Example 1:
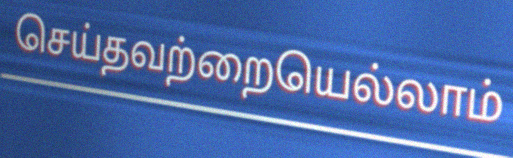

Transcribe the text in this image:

செய்தவற்றையெல்லாம்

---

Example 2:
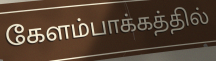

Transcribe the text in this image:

கேளம்பாக்கத்தில்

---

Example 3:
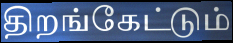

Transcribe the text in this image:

திறங்கேட்டும்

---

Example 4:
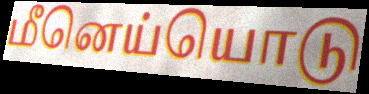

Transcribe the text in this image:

மீனெய்யொடு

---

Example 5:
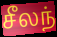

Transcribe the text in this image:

சீலந்